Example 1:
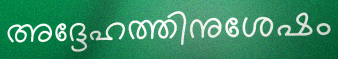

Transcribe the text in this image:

അദ്ദേഹത്തിനുശേഷം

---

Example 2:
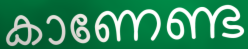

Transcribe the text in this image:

കാണേണ്ട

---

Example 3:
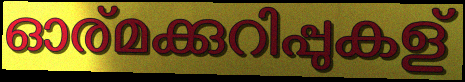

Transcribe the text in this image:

ഓര്മക്കുറിപ്പുകള്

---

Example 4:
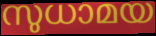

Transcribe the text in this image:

സുധാമയ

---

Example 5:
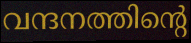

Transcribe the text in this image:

വന്ദനത്തിന്റെ